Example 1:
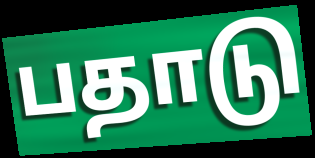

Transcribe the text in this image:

பதாடு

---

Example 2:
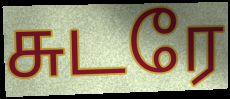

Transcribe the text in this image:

சுடரே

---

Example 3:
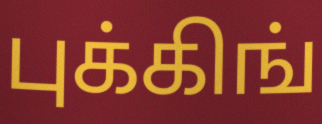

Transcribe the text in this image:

புக்கிங்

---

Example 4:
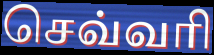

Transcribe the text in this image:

செவ்வரி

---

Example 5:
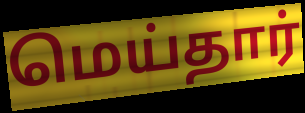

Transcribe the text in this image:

மெய்தார்